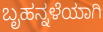
ಬೃಹನ್ನಳೆಯಾಗಿ